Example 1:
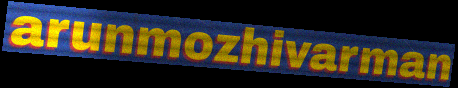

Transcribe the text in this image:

arunmozhivarman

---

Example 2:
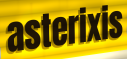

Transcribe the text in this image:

asterixis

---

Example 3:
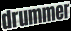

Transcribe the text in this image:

drummer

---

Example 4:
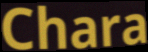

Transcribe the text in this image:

Chara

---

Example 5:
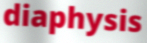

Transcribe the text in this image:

diaphysis